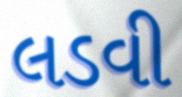
લડવી